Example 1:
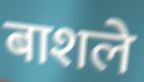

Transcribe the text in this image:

बाशले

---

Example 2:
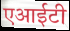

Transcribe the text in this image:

एआईटी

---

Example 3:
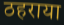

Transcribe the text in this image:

ठहराया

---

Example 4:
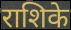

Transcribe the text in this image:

राशिके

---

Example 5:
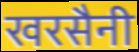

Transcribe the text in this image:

खरसैनी